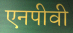
एनपीवी